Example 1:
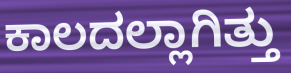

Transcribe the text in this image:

ಕಾಲದಲ್ಲಾಗಿತ್ತು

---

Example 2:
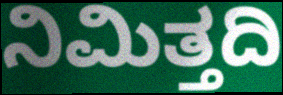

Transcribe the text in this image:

ನಿಮಿತ್ತದಿ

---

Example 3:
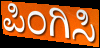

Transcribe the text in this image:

ಪಿಂಗಿಸಿ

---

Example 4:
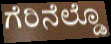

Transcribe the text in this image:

ಗೆರಿನೆಲ್ಡೊ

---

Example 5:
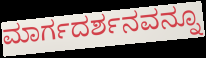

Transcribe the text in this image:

ಮಾರ್ಗದರ್ಶನವನ್ನೂ